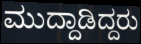
ಮುದ್ದಾಡಿದ್ದರು